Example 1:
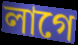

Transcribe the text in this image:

লাগে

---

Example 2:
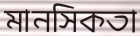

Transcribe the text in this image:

মানসিকতা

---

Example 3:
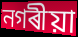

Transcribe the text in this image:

নগৰীয়া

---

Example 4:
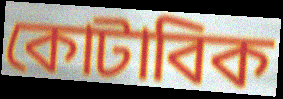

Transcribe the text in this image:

কোটাবিক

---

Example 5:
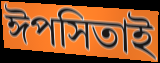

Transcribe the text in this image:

ঈপসিতাই